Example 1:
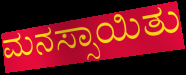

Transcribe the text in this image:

ಮನಸ್ಸಾಯಿತು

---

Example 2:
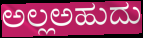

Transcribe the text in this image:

ಅಲ್ಲಅಹುದು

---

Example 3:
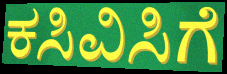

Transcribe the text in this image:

ಕಸಿವಿಸಿಗೆ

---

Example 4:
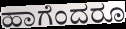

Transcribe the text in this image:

ಹಾಗೆಂದರೂ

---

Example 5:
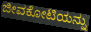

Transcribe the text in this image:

ಜೀವಕೋಟಿಯನ್ನು